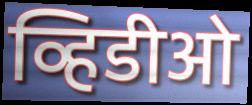
व्हिडीओ